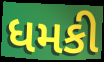
ધમકી